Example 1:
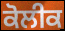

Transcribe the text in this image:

ਕੋਲੀਕ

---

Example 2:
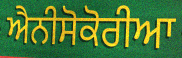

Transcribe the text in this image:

ਐਨੀਸੋਕੋਰੀਆ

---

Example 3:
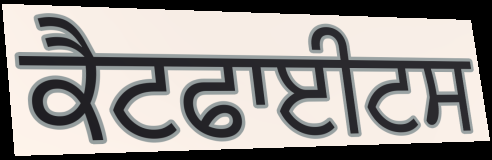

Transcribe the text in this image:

ਕੈਟਫਾਈਟਸ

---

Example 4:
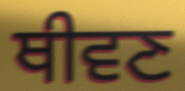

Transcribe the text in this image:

ਥੀਵਣ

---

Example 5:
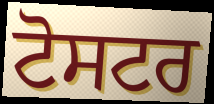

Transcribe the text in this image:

ਟੋਸਟਰ